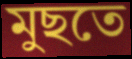
মুছতে